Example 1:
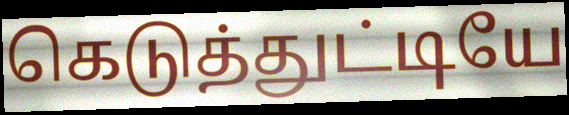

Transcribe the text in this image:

கெடுத்துட்டியே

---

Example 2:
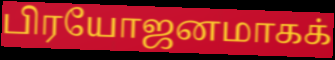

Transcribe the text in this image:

பிரயோஜனமாகக்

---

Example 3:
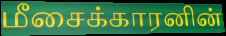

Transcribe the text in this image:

மீசைக்காரனின்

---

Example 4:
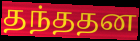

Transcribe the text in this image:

தந்ததன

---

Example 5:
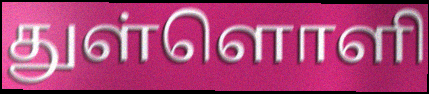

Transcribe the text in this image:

துள்ளொளி